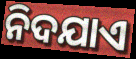
ନିଦଯାଏ